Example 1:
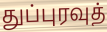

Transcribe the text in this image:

துப்புரவுத்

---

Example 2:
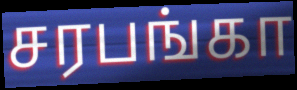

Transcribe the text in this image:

சரபங்கா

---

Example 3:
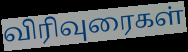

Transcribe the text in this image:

விரிவுரைகள்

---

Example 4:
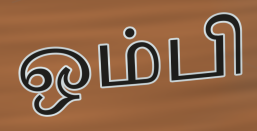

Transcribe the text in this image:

ஒம்பி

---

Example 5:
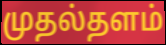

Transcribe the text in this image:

முதல்தளம்